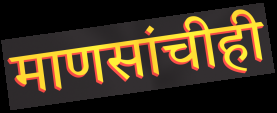
माणसांचीही